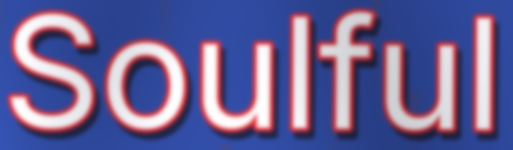
Soulful